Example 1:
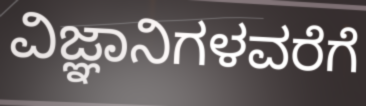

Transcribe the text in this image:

ವಿಜ್ಞಾನಿಗಳವರೆಗೆ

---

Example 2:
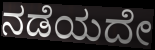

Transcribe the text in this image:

ನಡೆಯದೇ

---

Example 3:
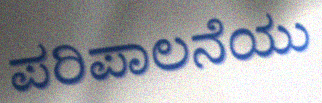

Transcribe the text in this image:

ಪರಿಪಾಲನೆಯು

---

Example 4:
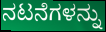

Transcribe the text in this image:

ನಟನೆಗಳನ್ನು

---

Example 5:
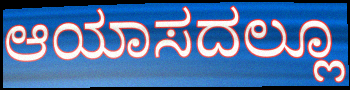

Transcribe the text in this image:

ಆಯಾಸದಲ್ಲೂ